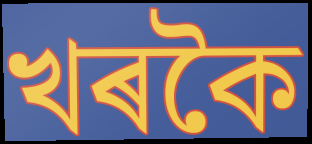
খৰকৈ